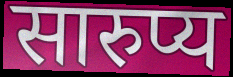
सारुप्य